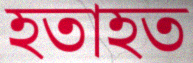
হতাহত